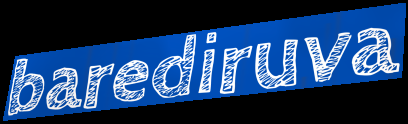
barediruva